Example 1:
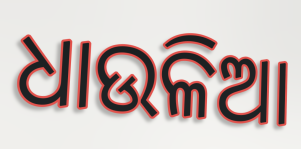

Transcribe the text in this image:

ଧାଉଳିଆ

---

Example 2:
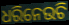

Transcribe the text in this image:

ଧରିନେଉଚି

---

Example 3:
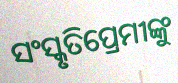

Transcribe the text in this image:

ସଂସ୍କୃତିପ୍ରେମୀଙ୍କୁ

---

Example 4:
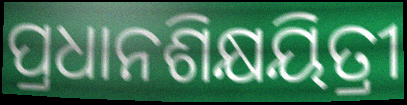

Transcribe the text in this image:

ପ୍ରଧାନଶିକ୍ଷୟିତ୍ରୀ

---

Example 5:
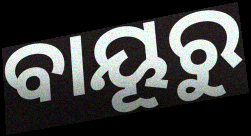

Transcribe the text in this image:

ବାୟୂରୁ